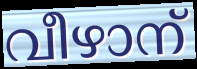
വീഴാന്